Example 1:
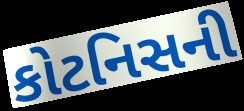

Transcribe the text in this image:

કોટનિસની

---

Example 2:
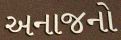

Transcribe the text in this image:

અનાજનો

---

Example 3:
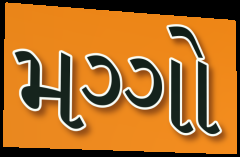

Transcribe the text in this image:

મગ્ગો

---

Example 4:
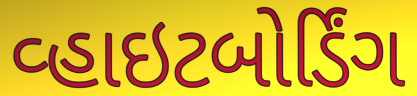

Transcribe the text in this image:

વ્હાઇટબોર્ડિંગ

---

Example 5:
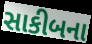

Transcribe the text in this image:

સાકીબના